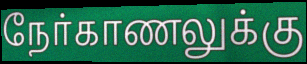
நேர்காணலுக்கு